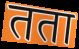
तता